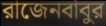
রাজেনবাবুর